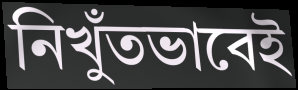
নিখুঁতভাবেই